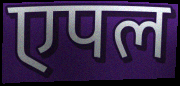
एपल